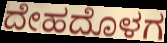
ದೇಹದೊಳಗ